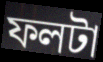
ফলটা